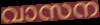
വാസന